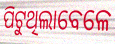
ପିଟୁଥିଲାବେଳେ